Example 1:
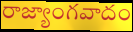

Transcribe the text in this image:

రాజ్యాంగవాదం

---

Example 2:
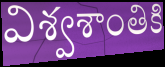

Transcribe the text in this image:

విశ్వశాంతికి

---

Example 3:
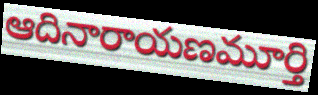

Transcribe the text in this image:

ఆదినారాయణమూర్తి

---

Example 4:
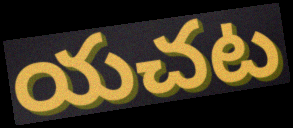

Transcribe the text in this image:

యచట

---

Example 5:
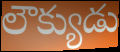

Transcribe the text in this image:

లౌక్యుడు